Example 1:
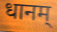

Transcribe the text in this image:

धानम्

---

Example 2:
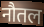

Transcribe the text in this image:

नौतल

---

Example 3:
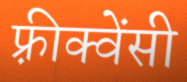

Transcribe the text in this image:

फ़्रीक्वेंसी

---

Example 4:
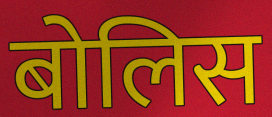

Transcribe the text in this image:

बोलिस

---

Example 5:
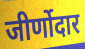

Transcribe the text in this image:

जीर्णोदार